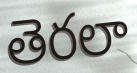
తెరలా